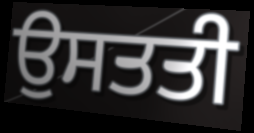
ਉਸਤਤੀ